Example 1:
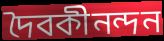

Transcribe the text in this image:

দৈবকীনন্দন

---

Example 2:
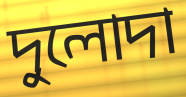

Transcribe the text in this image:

দুলোদা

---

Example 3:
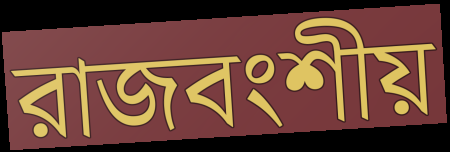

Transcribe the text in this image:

রাজবংশীয়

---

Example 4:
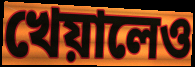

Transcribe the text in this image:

খেয়ালেও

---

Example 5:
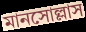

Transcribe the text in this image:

মানসোল্লাস